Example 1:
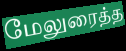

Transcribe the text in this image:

மேலுரைத்த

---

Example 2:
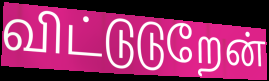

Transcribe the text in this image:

விட்டுடுறேன்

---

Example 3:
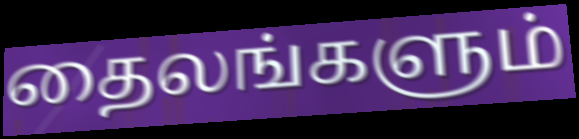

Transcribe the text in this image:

தைலங்களும்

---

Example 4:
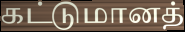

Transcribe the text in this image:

கட்டுமானத்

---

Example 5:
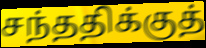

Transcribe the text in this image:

சந்ததிக்குத்